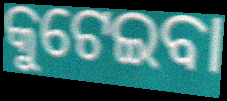
କୁଟେଇବା